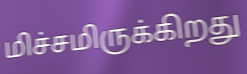
மிச்சமிருக்கிறது